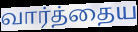
வார்த்தைய